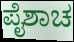
ಪೈಶಾಚ